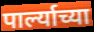
पार्ल्याच्या